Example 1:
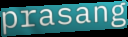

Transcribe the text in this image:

prasang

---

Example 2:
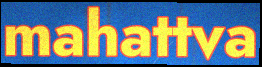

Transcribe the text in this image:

mahattva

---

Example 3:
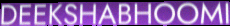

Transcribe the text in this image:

DEEKSHABHOOMI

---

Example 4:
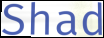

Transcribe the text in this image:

Shad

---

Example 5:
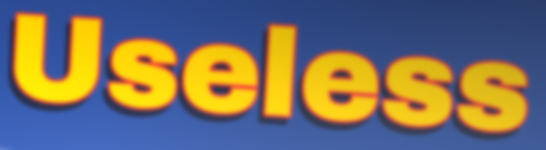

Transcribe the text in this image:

Useless